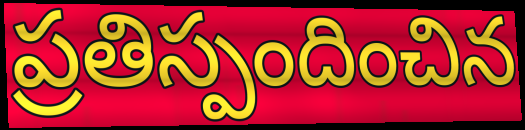
ప్రతిస్పందించిన